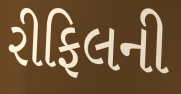
રીફિલની